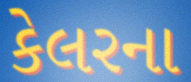
કેલરના